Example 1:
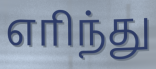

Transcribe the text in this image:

எரிந்து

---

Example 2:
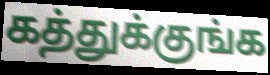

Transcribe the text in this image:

கத்துக்குங்க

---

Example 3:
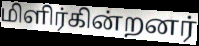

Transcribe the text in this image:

மிளிர்கின்றனர்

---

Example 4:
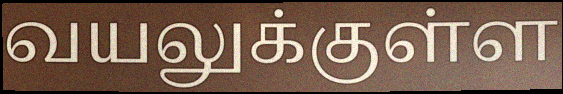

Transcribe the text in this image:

வயலுக்குள்ள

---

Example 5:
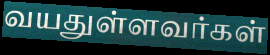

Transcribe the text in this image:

வயதுள்ளவர்கள்